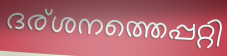
ദര്ശനത്തെപ്പറ്റി